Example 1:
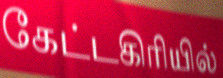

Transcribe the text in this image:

கேட்டகிரியில்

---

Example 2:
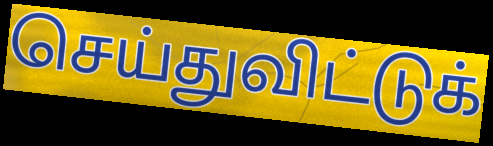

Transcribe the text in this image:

செய்துவிட்டுக்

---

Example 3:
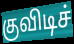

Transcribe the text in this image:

குவிடிச்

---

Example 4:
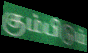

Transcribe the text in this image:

கும்பிடும்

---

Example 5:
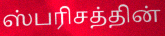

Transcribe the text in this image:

ஸ்பரிசத்தின்